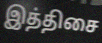
இத்திசை